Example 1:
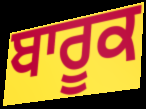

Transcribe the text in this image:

ਬਾਰੂਕ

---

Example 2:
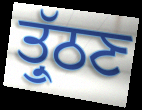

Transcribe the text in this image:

ਤ੍ਰੁੱਠਣ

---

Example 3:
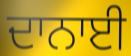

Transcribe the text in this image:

ਦਾਨਾਈ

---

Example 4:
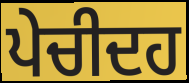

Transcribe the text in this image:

ਪੇਚੀਦਹ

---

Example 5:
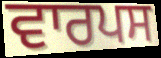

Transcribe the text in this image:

ਵਾਰਪਸ